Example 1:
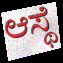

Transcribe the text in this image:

ಆಸ್ಥೆ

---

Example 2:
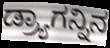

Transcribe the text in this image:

ಡ್ರ್ಯಾಗನ್ನಿನ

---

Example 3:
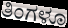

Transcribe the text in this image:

ತಿಂಗಳೂ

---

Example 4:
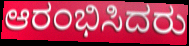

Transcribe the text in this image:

ಆರಂಭಿಸಿದರು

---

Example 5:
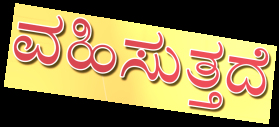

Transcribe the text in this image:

ವಹಿಸುತ್ತದೆ